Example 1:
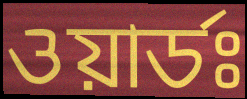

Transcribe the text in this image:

ওয়ার্ডঃ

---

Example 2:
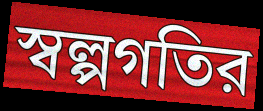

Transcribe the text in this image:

স্বল্পগতির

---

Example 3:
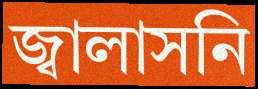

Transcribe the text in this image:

জ্বালাসনি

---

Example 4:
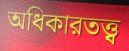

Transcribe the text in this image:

অধিকারতত্ত্ব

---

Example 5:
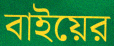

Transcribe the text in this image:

বাইয়ের